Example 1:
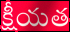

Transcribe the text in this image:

క్షీయత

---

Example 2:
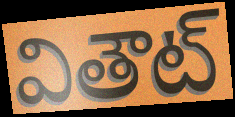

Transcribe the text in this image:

వితౌట్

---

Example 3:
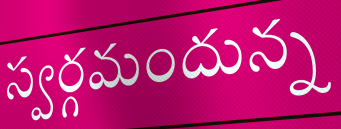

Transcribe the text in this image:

స్వర్గమందున్న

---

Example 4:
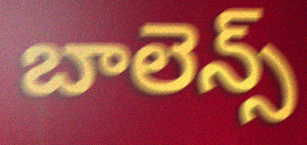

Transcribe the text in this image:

బాలెన్స్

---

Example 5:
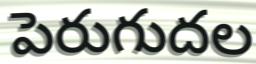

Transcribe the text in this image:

పెరుగుదల